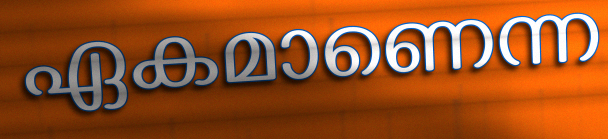
ഏകമാണെന്ന